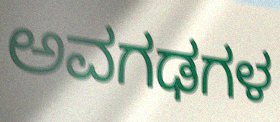
ಅವಗಢಗಳ